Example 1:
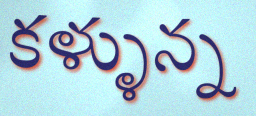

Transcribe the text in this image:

కళ్ళున్న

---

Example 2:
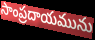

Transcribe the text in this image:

సాంప్రదాయమును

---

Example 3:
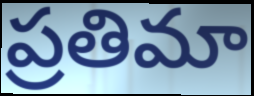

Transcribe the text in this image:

ప్రతిమా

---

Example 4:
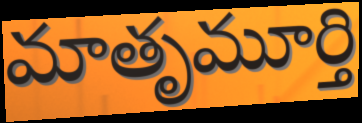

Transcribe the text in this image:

మాతృమూర్తి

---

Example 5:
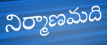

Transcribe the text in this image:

నిర్మాణమది